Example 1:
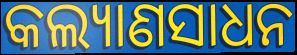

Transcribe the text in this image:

କଲ୍ୟାଣସାଧନ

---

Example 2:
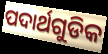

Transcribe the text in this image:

ପଦାର୍ଥଗୁଡିକ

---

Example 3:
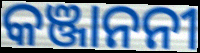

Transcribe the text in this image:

କଞ୍ଜାନନୀ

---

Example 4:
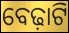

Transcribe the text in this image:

ବେଢ଼ାଟି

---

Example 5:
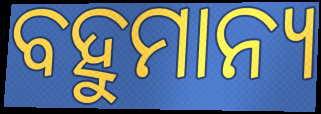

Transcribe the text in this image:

ବହୁମାନ୍ୟ